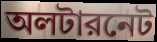
অলটারনেট